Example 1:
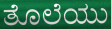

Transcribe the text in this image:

ತೊಲೆಯು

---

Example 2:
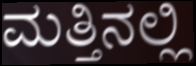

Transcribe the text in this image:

ಮತ್ತಿನಲ್ಲಿ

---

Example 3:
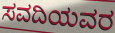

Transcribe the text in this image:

ಸವದಿಯವರ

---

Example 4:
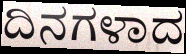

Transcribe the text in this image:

ದಿನಗಳಾದ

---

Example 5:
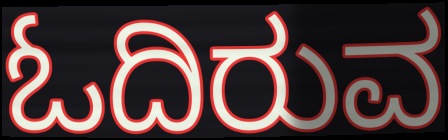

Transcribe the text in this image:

ಓದಿರುವ